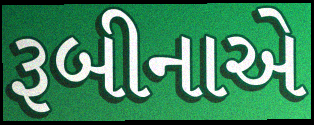
રૂબીનાએ